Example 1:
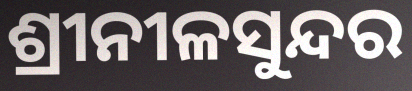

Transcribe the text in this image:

ଶ୍ରୀନୀଳସୁନ୍ଦର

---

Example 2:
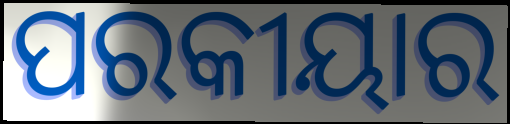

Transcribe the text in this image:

ପରକୀୟାର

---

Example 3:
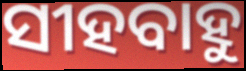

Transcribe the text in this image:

ସୀହବାହୁ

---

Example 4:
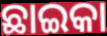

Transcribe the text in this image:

ଛାଇକା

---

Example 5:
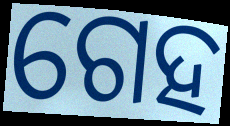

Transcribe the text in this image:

ଗେହ